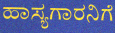
ಹಾಸ್ಯಗಾರನಿಗೆ